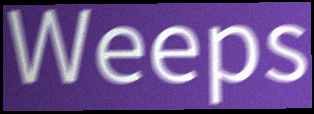
Weeps